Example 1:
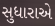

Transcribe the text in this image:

સુધારાએ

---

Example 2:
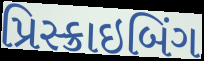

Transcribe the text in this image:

પ્રિસ્ક્રાઇબિંગ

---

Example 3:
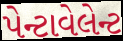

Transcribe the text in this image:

પેન્ટાવેલેન્ટ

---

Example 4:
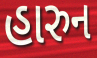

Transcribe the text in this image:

હારુન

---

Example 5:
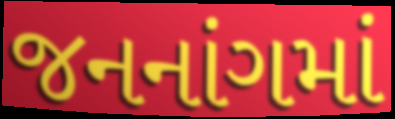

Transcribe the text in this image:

જનનાંગમાં